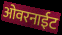
ओवरनाईट